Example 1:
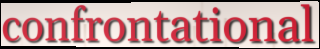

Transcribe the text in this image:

confrontational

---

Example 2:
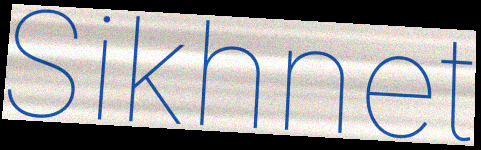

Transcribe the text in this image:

Sikhnet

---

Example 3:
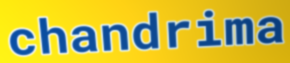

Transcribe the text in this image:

chandrima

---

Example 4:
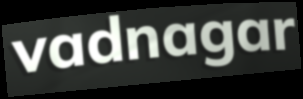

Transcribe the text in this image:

vadnagar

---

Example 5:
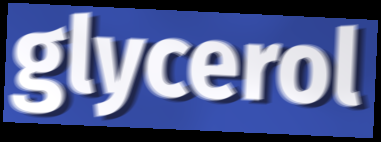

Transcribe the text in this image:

glycerol